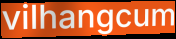
vilhangcum